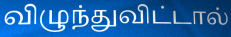
விழுந்துவிட்டால்